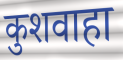
कुशवाहा